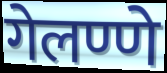
गेलण्णे